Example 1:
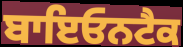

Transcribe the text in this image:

ਬਾਇਓਨਟੈਕ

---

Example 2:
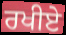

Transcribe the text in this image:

ਰਖੀਏ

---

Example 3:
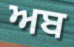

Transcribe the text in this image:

ਅਬ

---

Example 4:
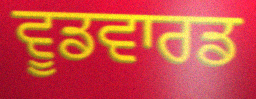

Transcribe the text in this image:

ਵੂਡਵਾਰਡ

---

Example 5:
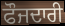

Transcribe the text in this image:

ਫੌਜਦਾਰੀ